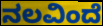
ನಲವಿಂದೆ